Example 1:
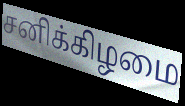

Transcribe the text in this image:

சனிக்கிழமை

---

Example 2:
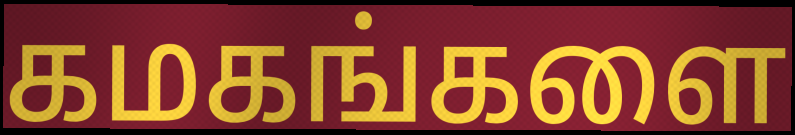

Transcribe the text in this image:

கமகங்களை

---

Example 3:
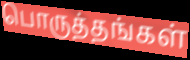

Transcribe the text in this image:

பொருத்தங்கள்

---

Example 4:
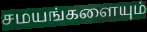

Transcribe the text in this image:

சமயங்களையும்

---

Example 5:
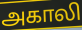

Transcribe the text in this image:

அகாலி